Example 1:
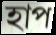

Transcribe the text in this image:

হাপ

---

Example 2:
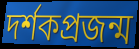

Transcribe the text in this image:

দর্শকপ্রজন্ম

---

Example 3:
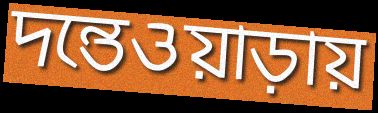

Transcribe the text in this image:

দন্তেওয়াড়ায়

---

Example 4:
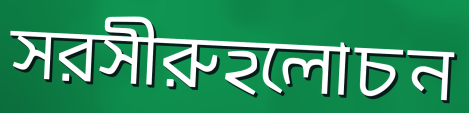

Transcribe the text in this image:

সরসীরুহলোচন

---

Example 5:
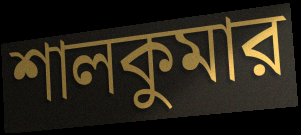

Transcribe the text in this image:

শালকুমার